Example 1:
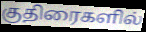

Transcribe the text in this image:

குதிரைகளில்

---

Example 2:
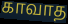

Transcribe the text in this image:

காவாத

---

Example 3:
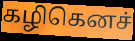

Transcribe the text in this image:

கழிகெனச்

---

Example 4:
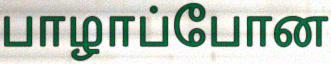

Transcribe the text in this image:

பாழாப்போன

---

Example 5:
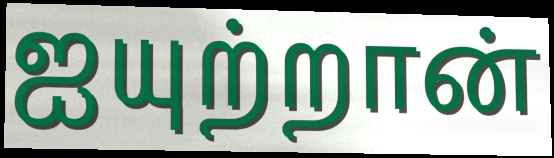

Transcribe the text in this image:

ஐயுற்றான்